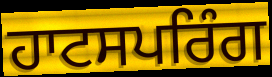
ਹਾਟਸਪਰਿੰਗ